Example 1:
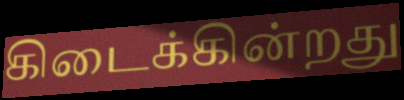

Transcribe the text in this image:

கிடைக்கின்றது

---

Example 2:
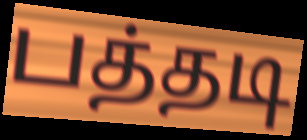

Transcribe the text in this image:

பத்தடி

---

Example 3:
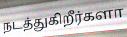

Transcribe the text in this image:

நடத்துகிறீர்களா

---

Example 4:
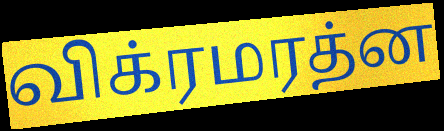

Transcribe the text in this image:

விக்ரமரத்ன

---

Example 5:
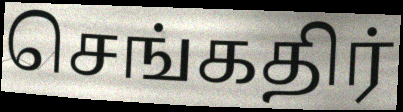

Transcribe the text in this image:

செங்கதிர்